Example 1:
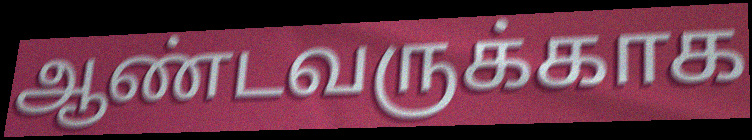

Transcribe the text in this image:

ஆண்டவருக்காக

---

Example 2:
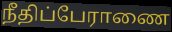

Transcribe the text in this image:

நீதிப்பேராணை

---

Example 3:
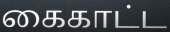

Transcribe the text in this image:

கைகாட்ட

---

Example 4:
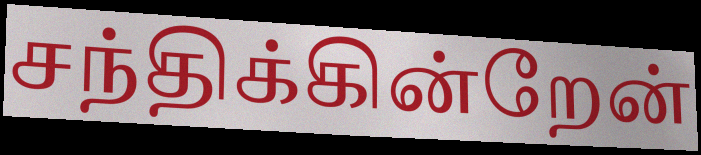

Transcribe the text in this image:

சந்திக்கின்றேன்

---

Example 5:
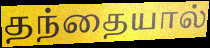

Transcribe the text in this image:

தந்தையால்